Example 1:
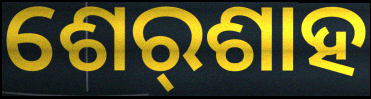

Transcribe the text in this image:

ଶେର୍‌ଶାହ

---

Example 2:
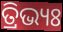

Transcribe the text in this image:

ତ୍ରିଭ୍ୟଃ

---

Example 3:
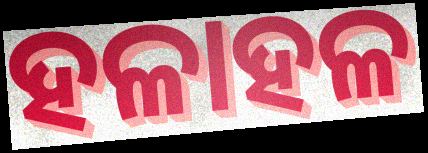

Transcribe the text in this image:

ହଳାହଳ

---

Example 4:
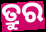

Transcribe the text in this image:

ତ୍ରୁର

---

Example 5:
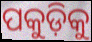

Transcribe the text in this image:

ପକୁଡ଼ିକୁ